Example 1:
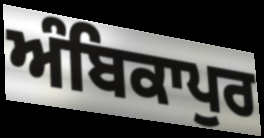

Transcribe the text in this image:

ਅੰਬਿਕਾਪੁਰ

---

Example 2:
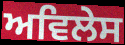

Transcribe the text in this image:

ਅਵਿਲੇਸ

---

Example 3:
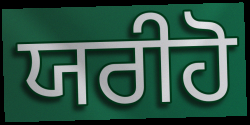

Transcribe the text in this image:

ਯਰੀਹੋ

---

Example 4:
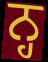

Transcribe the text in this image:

ਨ੍ਹ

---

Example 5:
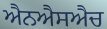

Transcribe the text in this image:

ਐਨਐਸਐਚ